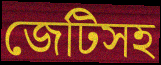
জেটিসহ